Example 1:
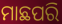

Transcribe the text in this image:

ମାଛପରି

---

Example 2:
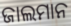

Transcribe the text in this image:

ଜାଲମାନ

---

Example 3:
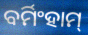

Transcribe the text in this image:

ବର୍ମିଂହାମ୍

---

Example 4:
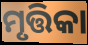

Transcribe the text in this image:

ମୃତ୍ତିକା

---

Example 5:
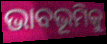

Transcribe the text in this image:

ଭାବଭୂମିକୁ